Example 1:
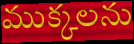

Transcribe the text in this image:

ముక్కలను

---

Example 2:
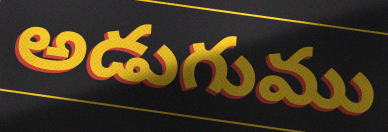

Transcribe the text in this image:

అడుగుము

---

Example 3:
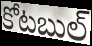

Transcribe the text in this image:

కోటబుల్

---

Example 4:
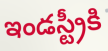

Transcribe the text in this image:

ఇండస్ట్రీకి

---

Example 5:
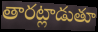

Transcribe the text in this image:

తారట్లాడుతూ